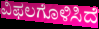
ವಿಫಲಗೊಳಿಸಿದೆ